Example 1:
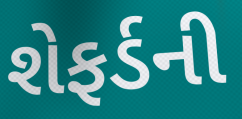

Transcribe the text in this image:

શેફર્ડની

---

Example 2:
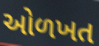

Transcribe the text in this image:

ઓળખત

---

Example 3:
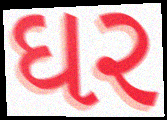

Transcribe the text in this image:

ઘર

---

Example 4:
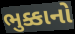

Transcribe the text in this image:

ભુક્કાનો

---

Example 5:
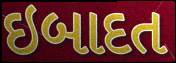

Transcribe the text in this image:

ઇબાદત